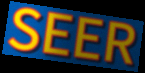
SEER